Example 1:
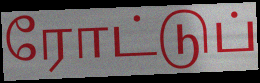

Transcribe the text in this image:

ரோட்டுப்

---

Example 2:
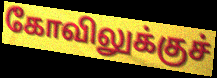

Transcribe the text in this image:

கோவிலுக்குச்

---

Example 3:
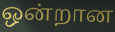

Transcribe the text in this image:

ஒன்றான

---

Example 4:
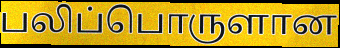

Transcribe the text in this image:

பலிப்பொருளான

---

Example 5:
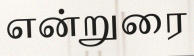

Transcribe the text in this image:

என்றுரை